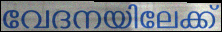
വേദനയിലേക്ക്